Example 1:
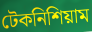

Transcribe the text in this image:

টেকনিশিয়াম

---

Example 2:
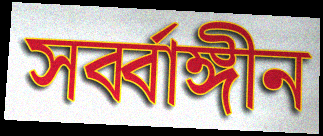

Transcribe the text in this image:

সর্ব্বাঙ্গীন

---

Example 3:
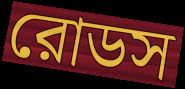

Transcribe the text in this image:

রোডস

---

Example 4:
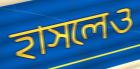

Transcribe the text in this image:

হাসলেও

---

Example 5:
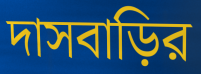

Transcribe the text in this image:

দাসবাড়ির